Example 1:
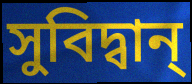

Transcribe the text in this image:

সুবিদ্বান্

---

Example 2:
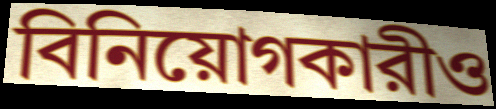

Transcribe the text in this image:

বিনিয়োগকারীও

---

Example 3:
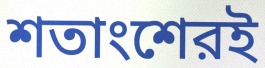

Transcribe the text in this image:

শতাংশেরই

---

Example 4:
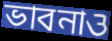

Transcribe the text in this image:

ভাবনাও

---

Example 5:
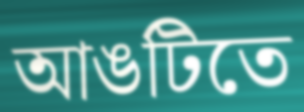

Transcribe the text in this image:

আঙটিতে